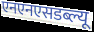
एनएनएसडब्ल्यू